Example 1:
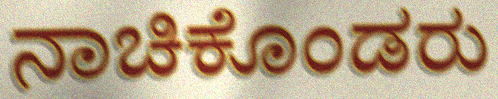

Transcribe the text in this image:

ನಾಚಿಕೊಂಡರು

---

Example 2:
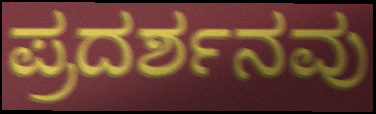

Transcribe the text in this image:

ಪ್ರದರ್ಶನವು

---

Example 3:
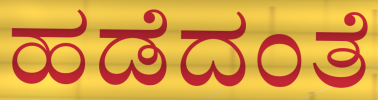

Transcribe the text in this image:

ಹಡೆದಂತೆ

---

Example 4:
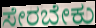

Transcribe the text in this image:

ಸೇರಬೇಕು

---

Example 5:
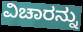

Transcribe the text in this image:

ವಿಚಾರನ್ನು